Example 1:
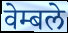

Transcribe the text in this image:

वेम्बले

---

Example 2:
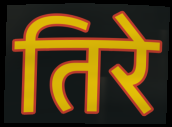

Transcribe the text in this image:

तिरे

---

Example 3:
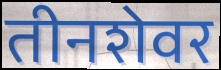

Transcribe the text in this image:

तीनशेवर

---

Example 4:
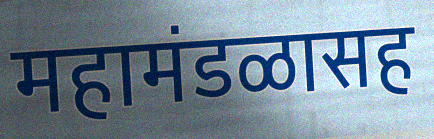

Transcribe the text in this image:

महामंडळासह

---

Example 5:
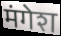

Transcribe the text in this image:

मंगेश